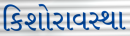
કિશોરાવસ્થા